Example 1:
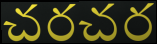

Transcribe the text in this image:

చరచర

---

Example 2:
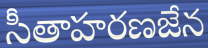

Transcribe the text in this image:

సీతాహరణజేన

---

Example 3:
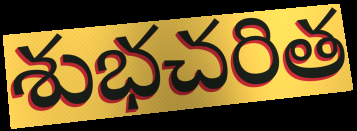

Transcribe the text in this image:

శుభచరిత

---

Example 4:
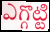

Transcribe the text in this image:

ఎగ్గొట్టి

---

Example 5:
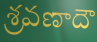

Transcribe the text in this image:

శ్రవణాదౌ